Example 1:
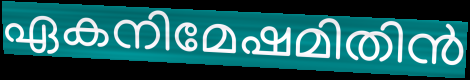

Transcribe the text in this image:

ഏകനിമേഷമിതിൻ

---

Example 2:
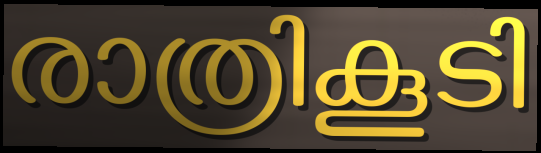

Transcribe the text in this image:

രാത്രികൂടി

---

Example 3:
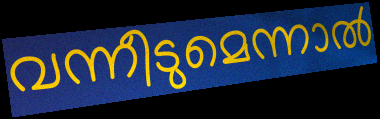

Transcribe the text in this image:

വന്നീടുമെന്നാൽ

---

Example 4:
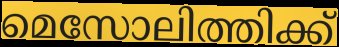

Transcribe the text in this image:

മെസോലിത്തിക്ക്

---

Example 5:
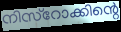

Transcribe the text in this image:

നിസ്റോക്കിന്റെ